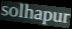
solhapur